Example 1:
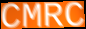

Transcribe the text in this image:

CMRC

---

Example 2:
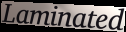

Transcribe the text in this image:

Laminated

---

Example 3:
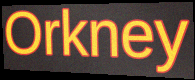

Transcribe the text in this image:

Orkney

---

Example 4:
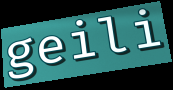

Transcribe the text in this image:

geili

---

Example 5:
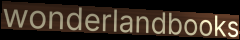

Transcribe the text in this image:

wonderlandbooks